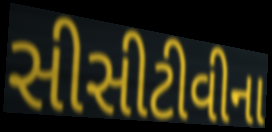
સીસીટીવીના